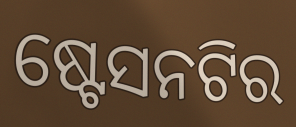
ଷ୍ଟେସନଟିର